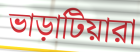
ভাড়াটিয়ারা